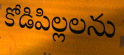
కోడిపిల్లలను